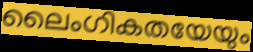
ലൈംഗികതയേയും